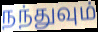
நந்துவும்